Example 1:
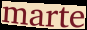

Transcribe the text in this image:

marte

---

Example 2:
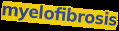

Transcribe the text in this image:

myelofibrosis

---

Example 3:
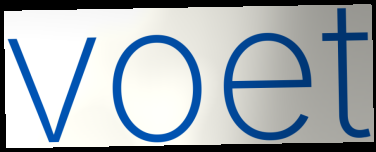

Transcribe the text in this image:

voet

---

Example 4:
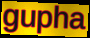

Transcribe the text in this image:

gupha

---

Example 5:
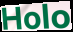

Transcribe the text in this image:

Holo